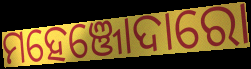
ମହେଞ୍ଜୋଦାରୋ